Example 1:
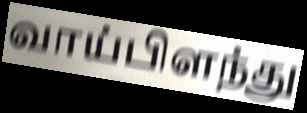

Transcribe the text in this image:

வாய்பிளந்து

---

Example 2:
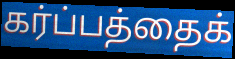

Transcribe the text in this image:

கர்ப்பத்தைக்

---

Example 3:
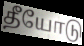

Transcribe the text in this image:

தீயோடு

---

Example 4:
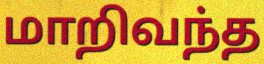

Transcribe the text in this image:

மாறிவந்த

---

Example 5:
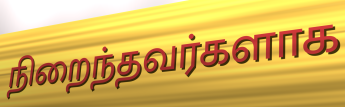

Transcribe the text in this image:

நிறைந்தவர்களாக